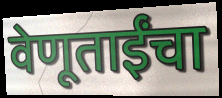
वेणूताईंचा